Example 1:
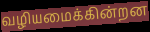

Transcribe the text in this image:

வழியமைக்கின்றன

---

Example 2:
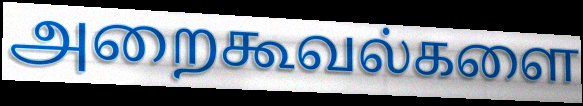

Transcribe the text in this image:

அறைகூவல்களை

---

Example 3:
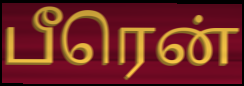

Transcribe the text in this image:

பீரென்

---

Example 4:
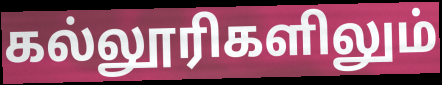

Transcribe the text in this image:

கல்லூரிகளிலும்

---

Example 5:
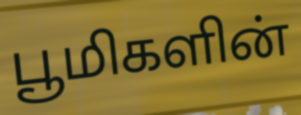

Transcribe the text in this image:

பூமிகளின்